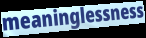
meaninglessness